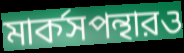
মার্কসপন্থারও